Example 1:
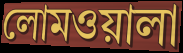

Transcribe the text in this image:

লোমওয়ালা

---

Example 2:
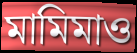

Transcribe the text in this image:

মামিমাও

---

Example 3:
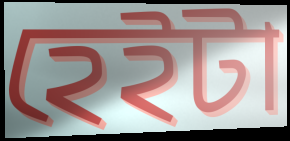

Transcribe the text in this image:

হেইটা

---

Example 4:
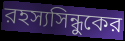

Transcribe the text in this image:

রহস্যসিন্ধুকের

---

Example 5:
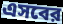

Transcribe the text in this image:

এসবের